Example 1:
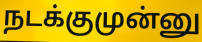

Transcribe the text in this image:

நடக்குமுன்னு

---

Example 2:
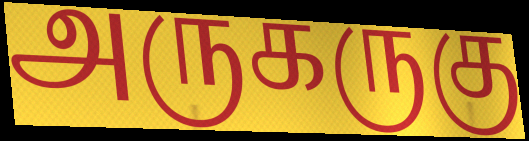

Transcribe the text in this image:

அருகருகு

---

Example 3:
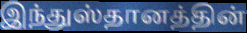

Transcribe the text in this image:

இந்துஸ்தானத்தின்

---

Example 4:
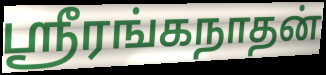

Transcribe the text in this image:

ஸ்ரீரங்கநாதன்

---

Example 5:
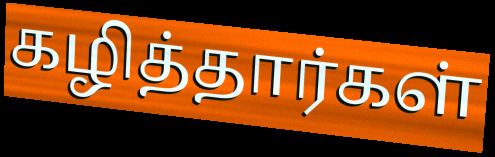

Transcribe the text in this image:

கழித்தார்கள்